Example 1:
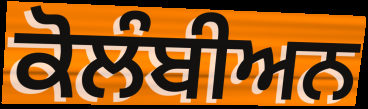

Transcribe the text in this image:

ਕੋਲੰਬੀਅਨ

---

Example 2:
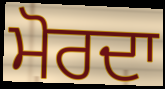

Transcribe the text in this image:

ਮੋਰਦਾ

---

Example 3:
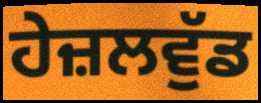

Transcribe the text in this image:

ਹੇਜ਼ਲਵੁੱਡ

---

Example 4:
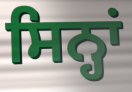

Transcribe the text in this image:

ਸਿਨ੍ਹਾਂ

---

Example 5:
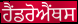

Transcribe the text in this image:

ਹੈਂਡਰੋਐਂਥਸ